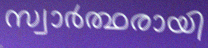
സ്വാർത്ഥരായി